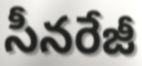
సీనరేజీ